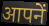
आपनें